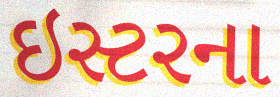
ઇસ્ટરના